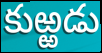
కుఱ్ఱడు